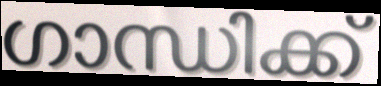
ഗാന്ധിക്ക്